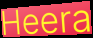
Heera